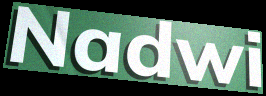
Nadwi